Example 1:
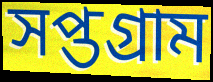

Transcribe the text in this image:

সপ্তগ্রাম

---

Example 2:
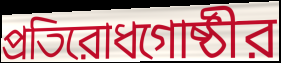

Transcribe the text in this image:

প্রতিরোধগোষ্ঠীর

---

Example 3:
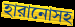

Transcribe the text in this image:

হারানোসহ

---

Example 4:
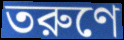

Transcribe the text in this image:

তরুণে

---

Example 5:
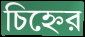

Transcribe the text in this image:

চিহ্নের